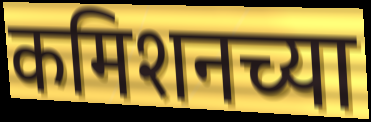
कमिशनच्या